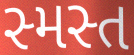
સ્મસ્ત